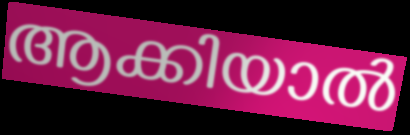
ആക്കിയാൽ